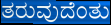
ತರುವುದೆಂತು